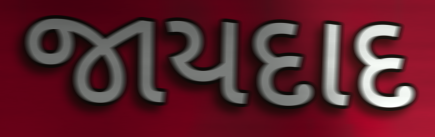
જાયદાદ